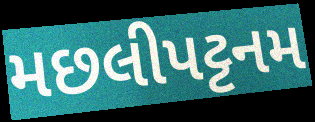
મછલીપટ્ટનમ